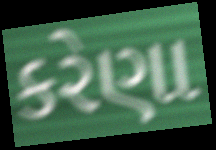
કરેણા